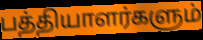
பத்தியாளர்களும்